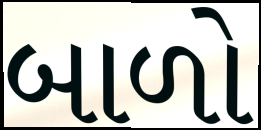
બાળો